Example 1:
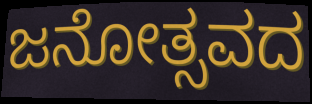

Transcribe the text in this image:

ಜನೋತ್ಸವದ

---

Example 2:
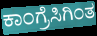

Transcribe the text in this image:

ಕಾಂಗ್ರೆಸಿಗಿಂತ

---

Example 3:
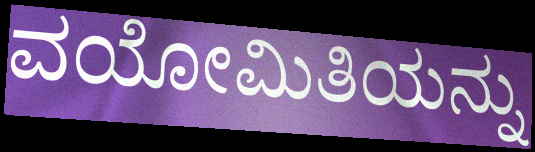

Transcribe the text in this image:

ವಯೋಮಿತಿಯನ್ನು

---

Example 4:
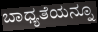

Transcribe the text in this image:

ಬಾಧ್ಯತೆಯನ್ನೂ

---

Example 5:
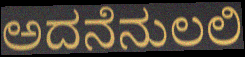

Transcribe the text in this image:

ಅದನೆನುಲಲಿ